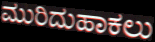
ಮುರಿದುಹಾಕಲು